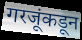
गरजूंकडून